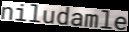
niludamle